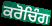
ਕਰੋਚਿੰਗ